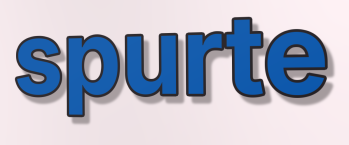
spurte